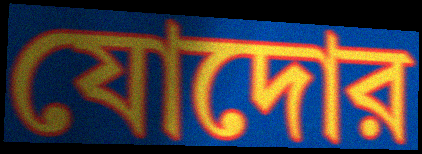
যোদোর